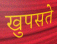
खुपसते